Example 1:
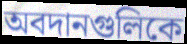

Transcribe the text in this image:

অবদানগুলিকে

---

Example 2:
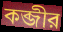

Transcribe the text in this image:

কব্জীর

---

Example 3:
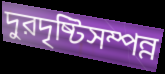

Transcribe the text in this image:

দুরদৃষ্টিসম্পন্ন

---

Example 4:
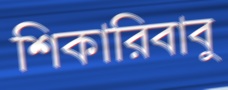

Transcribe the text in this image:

শিকারিবাবু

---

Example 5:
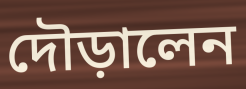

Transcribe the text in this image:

দৌড়ালেন